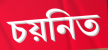
চয়নিত